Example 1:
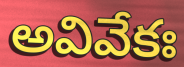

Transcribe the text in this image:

అవివేకః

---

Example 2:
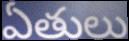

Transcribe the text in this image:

ఏతులు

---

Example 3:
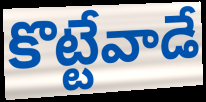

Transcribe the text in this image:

కొట్టేవాడే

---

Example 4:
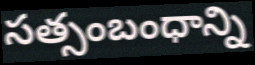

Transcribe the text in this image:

సత్సంబంధాన్ని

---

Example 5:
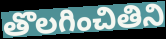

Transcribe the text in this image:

తొలగించితిని